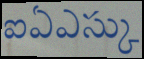
ఐఏఎస్కు